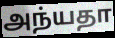
அந்யதா